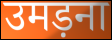
उमड़ना